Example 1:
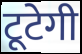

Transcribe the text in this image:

टूटेगी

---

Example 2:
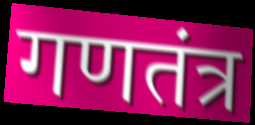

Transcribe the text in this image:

गणतंत्र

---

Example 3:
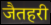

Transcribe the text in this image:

जैतहरी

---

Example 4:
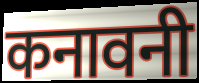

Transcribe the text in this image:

कनावनी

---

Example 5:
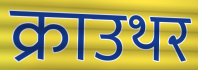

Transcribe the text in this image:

क्राउथर